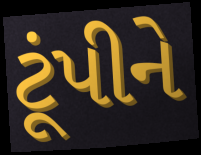
ટૂંપીને